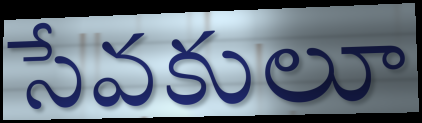
సేవకులూ